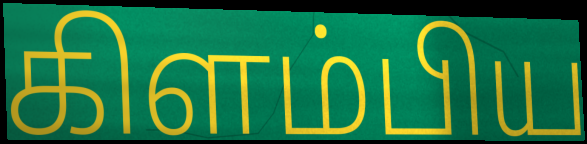
கிளம்பிய